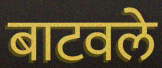
बाटवले